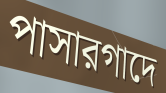
পাসারগাদে